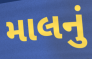
માલનું